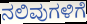
ನಲಿವುಗಳಿಗೆ